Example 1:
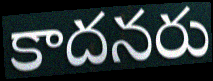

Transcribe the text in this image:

కాదనరు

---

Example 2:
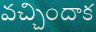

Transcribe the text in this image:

వచ్చిందాక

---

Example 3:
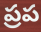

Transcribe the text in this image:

ప్రప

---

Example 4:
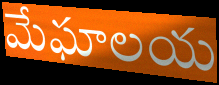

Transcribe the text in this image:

మేఘాలయ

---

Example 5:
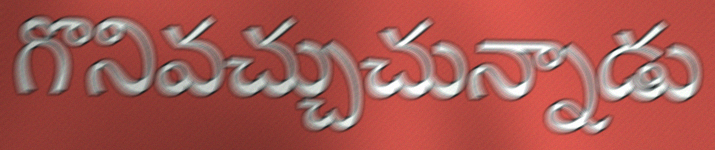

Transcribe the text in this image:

గొనివచ్చుచున్నాడు